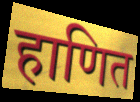
हाणित